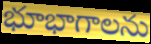
భూభాగాలను